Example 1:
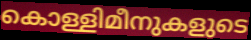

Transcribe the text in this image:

കൊള്ളിമീനുകളുടെ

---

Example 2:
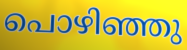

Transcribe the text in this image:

പൊഴിഞ്ഞു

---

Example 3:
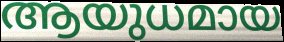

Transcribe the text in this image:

ആയുധമായ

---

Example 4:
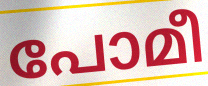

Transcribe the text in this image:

പോമീ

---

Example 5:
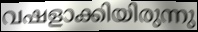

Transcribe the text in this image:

വഷളാക്കിയിരുന്നു